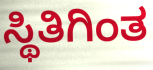
ಸ್ಥಿತಿಗಿಂತ